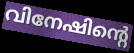
വിനേഷിന്റെ